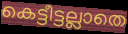
കെട്ടീട്ടല്ലാതെ